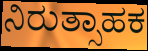
ನಿರುತ್ಸಾಹಕ